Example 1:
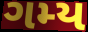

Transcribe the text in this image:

ગમ્ય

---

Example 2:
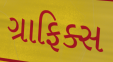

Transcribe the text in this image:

ગ્રાફિક્સ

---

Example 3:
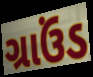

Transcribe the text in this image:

ગ્રાઉંડ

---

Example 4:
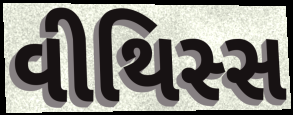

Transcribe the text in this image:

વીથિસ્સ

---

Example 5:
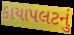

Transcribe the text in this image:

કાયાપલટનું